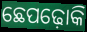
ଛେପଢ଼ୋକି